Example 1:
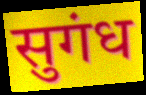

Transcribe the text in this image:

सुगंध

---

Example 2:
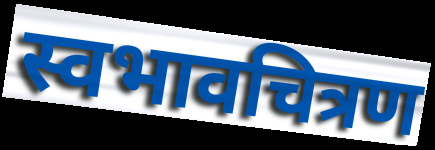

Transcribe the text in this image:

स्वभावचित्रण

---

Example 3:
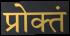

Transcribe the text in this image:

प्रोक्तं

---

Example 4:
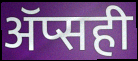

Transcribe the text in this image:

ॲप्सही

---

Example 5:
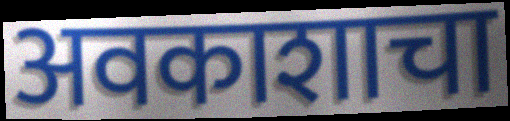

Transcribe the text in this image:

अवकाशाचा